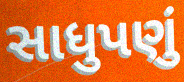
સાધુપણું